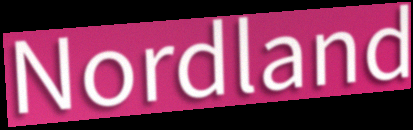
Nordland